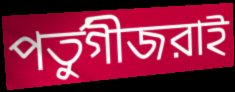
পর্তুগীজরাই